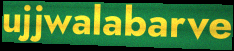
ujjwalabarve